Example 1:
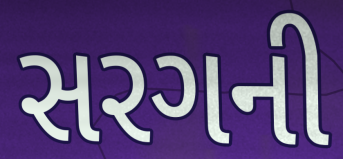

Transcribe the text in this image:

સરગની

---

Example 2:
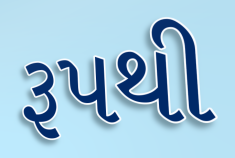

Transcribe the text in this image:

રૂપથી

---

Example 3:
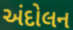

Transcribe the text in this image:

અંદોલન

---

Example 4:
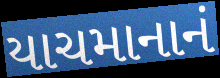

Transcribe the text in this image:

યાચમાનાનં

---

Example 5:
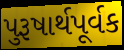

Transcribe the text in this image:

પુરૂષાર્થપૂર્વક